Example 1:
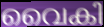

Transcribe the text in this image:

വൈകി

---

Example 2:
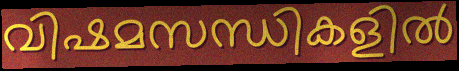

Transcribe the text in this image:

വിഷമസന്ധികളിൽ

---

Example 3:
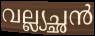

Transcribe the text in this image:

വല്ല്യച്ഛൻ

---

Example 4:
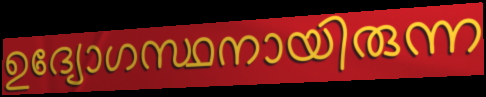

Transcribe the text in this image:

ഉദ്യോഗസ്ഥനായിരുന്ന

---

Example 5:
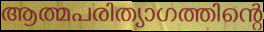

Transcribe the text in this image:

ആത്മപരിത്യാഗത്തിന്റെ